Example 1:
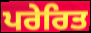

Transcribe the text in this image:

ਪਰੇਰਿਤ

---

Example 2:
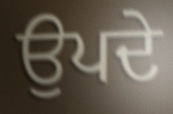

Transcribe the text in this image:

ਉਪਦੇ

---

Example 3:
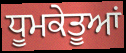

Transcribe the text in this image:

ਧੂਮਕੇਤੂਆਂ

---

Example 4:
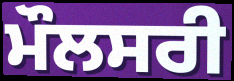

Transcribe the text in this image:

ਮੌਲਸਰੀ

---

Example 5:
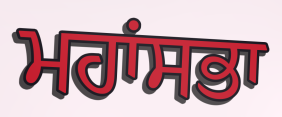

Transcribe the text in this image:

ਮਹਾਂਸਭਾ